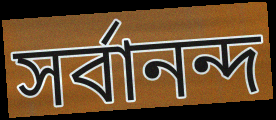
সৰ্বানন্দ